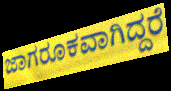
ಜಾಗರೂಕವಾಗಿದ್ದರೆ